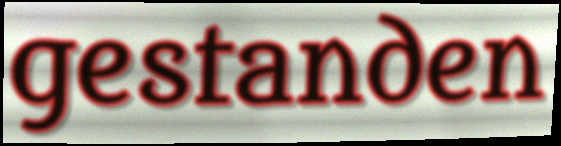
gestanden